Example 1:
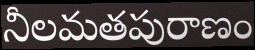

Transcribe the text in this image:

నీలమతపురాణం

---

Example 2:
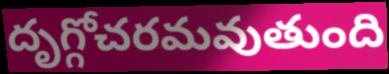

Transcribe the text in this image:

దృగ్గోచరమవుతుంది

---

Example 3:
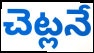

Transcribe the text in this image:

చెట్లనే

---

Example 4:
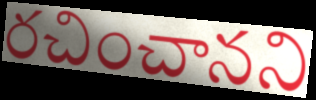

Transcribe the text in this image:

రచించానని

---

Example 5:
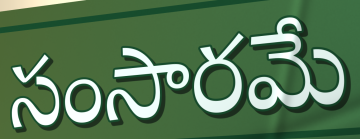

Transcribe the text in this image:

సంసారమే